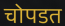
चोपडत